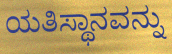
ಯತಿಸ್ಥಾನವನ್ನು